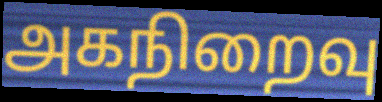
அகநிறைவு